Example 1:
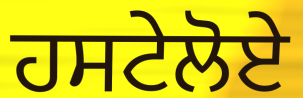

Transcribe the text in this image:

ਹਸਟੇਲੋਏ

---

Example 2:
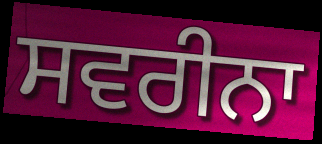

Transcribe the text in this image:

ਸਵਰੀਨਾ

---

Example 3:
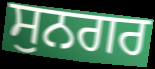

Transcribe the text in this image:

ਸੁਨਗਰ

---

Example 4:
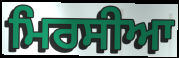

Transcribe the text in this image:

ਮਿਰਸੀਆ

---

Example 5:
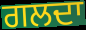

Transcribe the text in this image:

ਗਲਦਾ